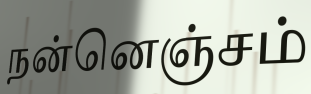
நன்னெஞ்சம்